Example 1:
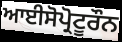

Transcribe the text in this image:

ਆਈਸੋਪ੍ਰੋਟੂਰੌਨ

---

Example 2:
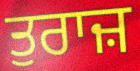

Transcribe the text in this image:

ਤੁਰਾਜ਼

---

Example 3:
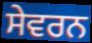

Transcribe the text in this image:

ਸੇਵਰਨ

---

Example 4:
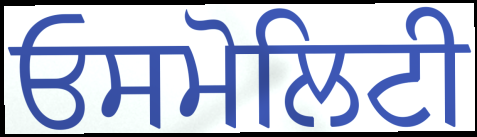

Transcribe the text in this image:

ਓਸਮੋਲਿਟੀ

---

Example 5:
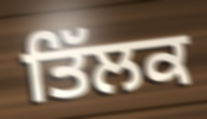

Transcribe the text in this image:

ਤਿੱਲਕ